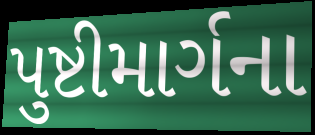
પુષ્ટીમાર્ગના